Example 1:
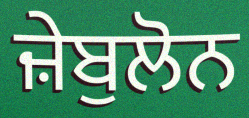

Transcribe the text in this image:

ਜ਼ੇਬੁਲੋਨ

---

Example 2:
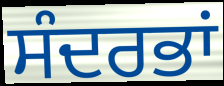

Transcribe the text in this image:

ਸੰਦਰਭਾਂ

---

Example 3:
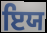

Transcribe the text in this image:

ਇਯ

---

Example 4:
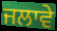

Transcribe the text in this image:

ਜਲਾਵੇ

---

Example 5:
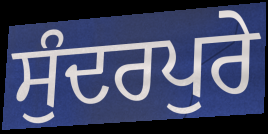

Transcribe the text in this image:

ਸੁੰਦਰਪੁਰੇ